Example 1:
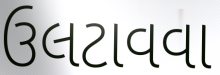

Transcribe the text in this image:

ઉલટાવવા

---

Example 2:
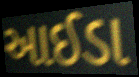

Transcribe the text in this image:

આઈડા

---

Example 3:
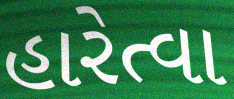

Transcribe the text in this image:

હારેત્વા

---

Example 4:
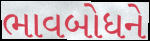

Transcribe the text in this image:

ભાવબોધને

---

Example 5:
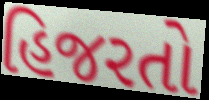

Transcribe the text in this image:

હિજરતો